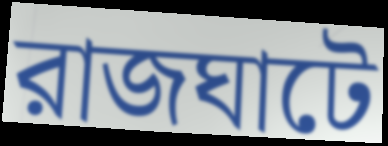
রাজঘাটে